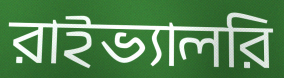
রাইভ্যালরি